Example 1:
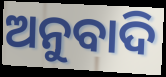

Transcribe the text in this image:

ଅନୁବାଦି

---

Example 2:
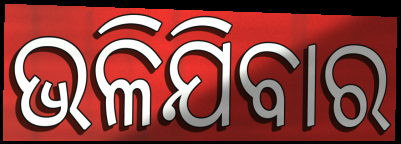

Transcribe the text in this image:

ଭଳିଯିବାର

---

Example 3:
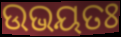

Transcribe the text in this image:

ଉଭୟତଃ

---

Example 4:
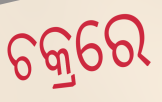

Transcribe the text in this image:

ଚକ୍ରରେ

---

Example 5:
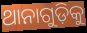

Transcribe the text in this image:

ଥାନାଗୁଡ଼ିକୁ